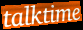
talktime